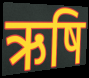
ऋषि